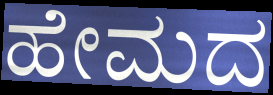
ಹೇಮದ